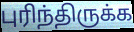
புரிந்திருக்க